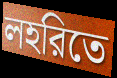
লহরিতে